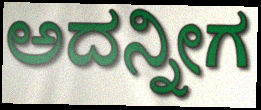
ಅದನ್ನೀಗ